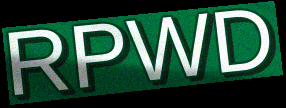
RPWD